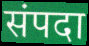
संपदा